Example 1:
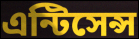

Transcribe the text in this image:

এন্টিসেন্স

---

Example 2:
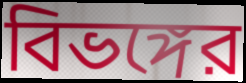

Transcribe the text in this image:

বিভঙ্গের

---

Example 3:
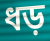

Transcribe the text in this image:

ধড়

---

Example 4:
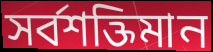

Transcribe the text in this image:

সর্বশক্তিমান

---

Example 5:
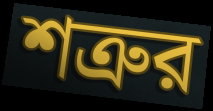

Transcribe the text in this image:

শত্রুর